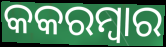
କକରମ୍ବାର